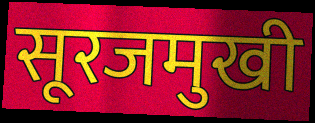
सूरजमुखी